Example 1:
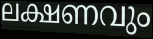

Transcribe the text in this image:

ലക്ഷണവും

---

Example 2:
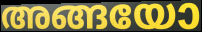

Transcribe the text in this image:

അങ്ങയോ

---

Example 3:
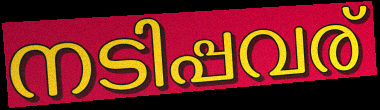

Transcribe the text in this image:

നടിപ്പവര്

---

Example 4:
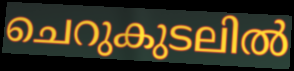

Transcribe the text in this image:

ചെറുകുടലിൽ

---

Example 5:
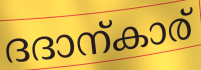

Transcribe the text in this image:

ദദാന്കാര്